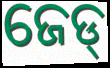
ଜେଡ୍